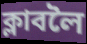
ক্লাবলৈ